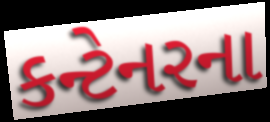
કન્ટેનરના